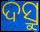
ଦସ୍ରୁ